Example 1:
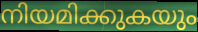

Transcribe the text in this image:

നിയമിക്കുകയും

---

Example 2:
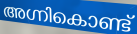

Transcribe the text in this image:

അഗ്നികൊണ്ട്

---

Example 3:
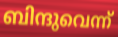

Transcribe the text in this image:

ബിന്ദുവെന്ന്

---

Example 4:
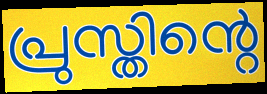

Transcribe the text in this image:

പ്രുസ്തിന്റെ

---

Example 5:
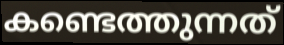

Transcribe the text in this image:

കണ്ടെത്തുന്നത്